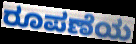
ರೂಪಣೆಯ